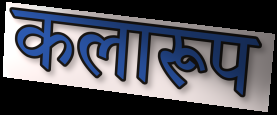
कलारूप